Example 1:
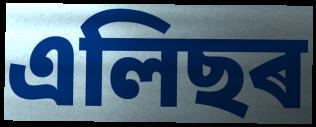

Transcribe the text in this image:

এলিছৰ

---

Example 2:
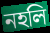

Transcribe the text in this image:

নহলি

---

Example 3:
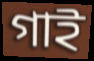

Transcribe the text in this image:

গাই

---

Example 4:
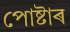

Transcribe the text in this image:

পোষ্টাৰ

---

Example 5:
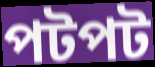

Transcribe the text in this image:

পটপট